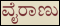
ವೈರಾಣು